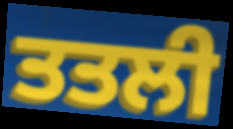
ਤਤਲੀ